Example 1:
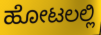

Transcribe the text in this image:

ಹೋಟಲಲ್ಲಿ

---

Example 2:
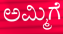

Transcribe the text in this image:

ಅಮ್ಮಿಗೆ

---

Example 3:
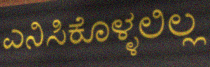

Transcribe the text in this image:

ಎನಿಸಿಕೊಳ್ಳಲಿಲ್ಲ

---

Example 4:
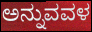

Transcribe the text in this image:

ಅನ್ನುವವಳ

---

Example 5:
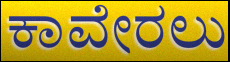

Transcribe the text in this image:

ಕಾವೇರಲು